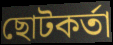
ছোটকর্তা